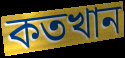
কতখান